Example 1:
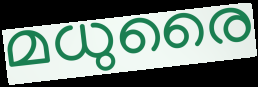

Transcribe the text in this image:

മധുരൈ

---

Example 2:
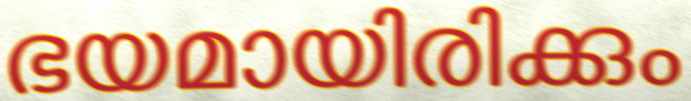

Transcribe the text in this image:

ഭയമായിരിക്കും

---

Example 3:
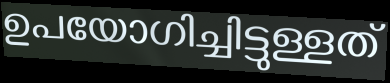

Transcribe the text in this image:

ഉപയോഗിച്ചിട്ടുള്ളത്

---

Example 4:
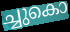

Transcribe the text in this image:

ച്ചുകൊ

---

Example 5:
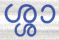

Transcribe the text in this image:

ശ്ശാ